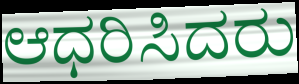
ಆಧರಿಸಿದರು